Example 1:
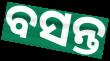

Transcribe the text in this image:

ବସନ୍ତ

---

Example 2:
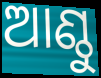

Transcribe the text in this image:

ଆଣ୍ଠୁ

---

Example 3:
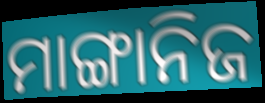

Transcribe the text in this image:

ମାଙ୍ଗାନିଜ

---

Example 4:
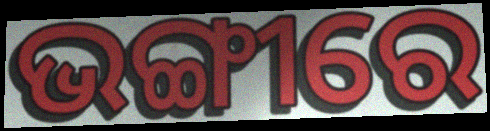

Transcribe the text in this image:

ଭଙ୍ଗୀରେ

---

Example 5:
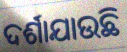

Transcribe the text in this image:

ଦର୍ଶାଯାଉଛି